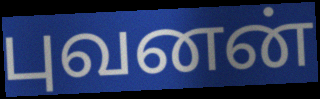
புவனன்